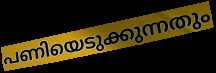
പണിയെടുക്കുന്നതും